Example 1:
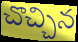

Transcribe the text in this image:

చొచ్చిన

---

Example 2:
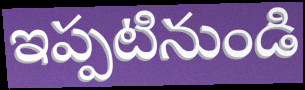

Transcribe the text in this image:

ఇప్పటినుండి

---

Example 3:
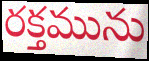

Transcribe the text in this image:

రక్తమును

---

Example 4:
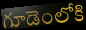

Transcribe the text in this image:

గూడెంలోకి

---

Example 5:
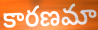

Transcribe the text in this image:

కారణమా